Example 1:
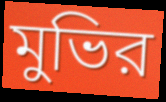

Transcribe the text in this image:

মুভির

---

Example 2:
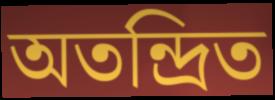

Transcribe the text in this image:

অতন্দ্রিত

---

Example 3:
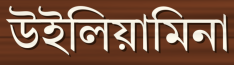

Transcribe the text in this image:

উইলিয়ামিনা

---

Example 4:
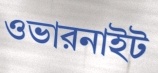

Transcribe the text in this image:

ওভারনাইট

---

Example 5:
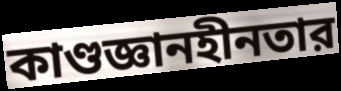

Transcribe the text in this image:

কাণ্ডজ্ঞানহীনতার